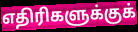
எதிரிகளுக்குக்